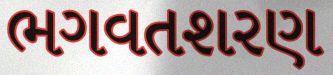
ભગવતશરણ